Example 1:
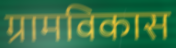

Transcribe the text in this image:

ग्रामविकास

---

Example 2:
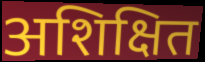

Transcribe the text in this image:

अशिक्षित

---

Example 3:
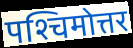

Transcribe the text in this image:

पश्चिमोत्तर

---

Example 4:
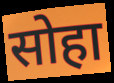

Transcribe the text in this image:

सोहा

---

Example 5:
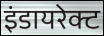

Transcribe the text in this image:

इंडायरेक्ट